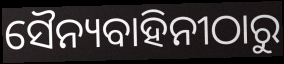
ସୈନ୍ୟବାହିନୀଠାରୁ